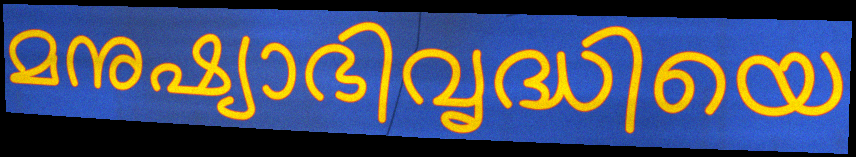
മനുഷ്യാഭിവൃദ്ധിയെ